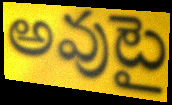
అవుటై